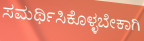
ಸಮರ್ಥಿಸಿಕೊಳ್ಳಬೇಕಾಗಿ